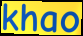
khao